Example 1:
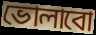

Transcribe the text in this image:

ভোলাবো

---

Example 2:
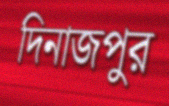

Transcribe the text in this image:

দিনাজপুর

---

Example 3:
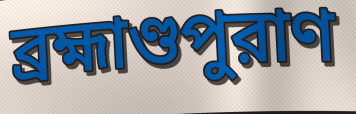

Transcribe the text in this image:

ব্রহ্মাণ্ডপুরাণ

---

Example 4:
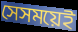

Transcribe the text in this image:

সেসময়েই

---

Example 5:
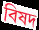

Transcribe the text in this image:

বিষদ